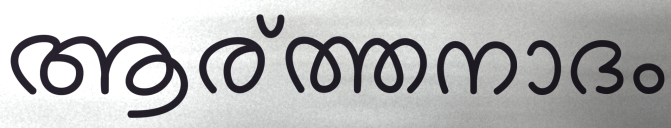
ആര്ത്തനാദം